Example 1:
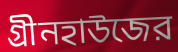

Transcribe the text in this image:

গ্রীনহাউজের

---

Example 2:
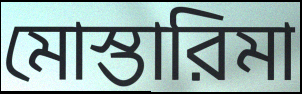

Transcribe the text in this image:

মোস্তারিমা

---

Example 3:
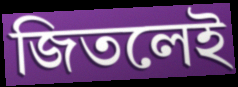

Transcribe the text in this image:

জিতলেই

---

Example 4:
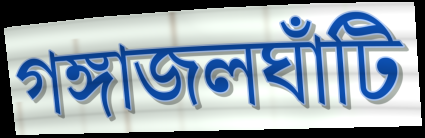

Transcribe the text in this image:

গঙ্গাজলঘাঁটি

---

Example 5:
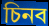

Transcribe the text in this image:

চিনব